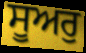
ਸੂਅਰੁ